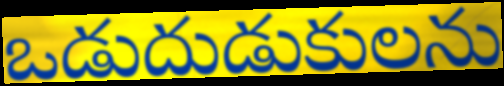
ఒడుదుడుకులను